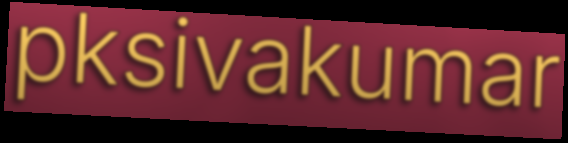
pksivakumar